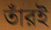
তাঁরই